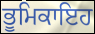
ਭੂਮਿਕਾਇਹ